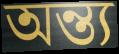
অন্ত্য